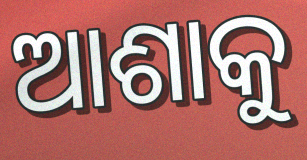
ଆଶାକୁ